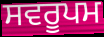
ਸਵਰੂਪਮ